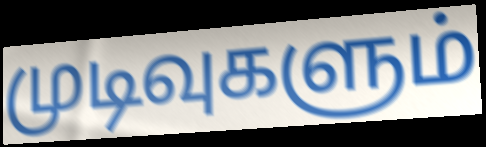
முடிவுகளும்